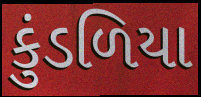
કુંડળિયા